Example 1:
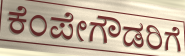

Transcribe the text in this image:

ಕೆಂಪೇಗೌಡರಿಗೆ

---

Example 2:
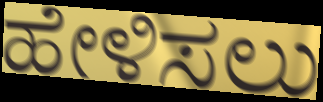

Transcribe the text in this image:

ಹೇಳಿಸಲು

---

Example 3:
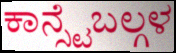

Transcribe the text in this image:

ಕಾನ್ಸ್ಟೆಬಲ್ಗಳ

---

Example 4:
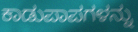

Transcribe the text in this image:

ಕಾಡುಪಾಪಗಳನ್ನು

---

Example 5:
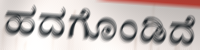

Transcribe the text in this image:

ಹದಗೊಂಡಿದೆ